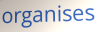
organises